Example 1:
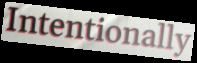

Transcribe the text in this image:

Intentionally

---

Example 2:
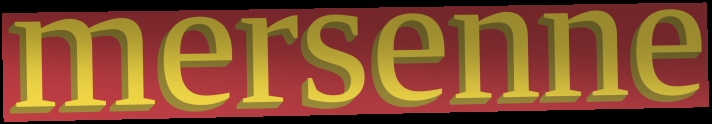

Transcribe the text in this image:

mersenne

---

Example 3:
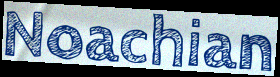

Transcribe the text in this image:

Noachian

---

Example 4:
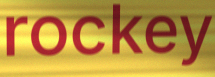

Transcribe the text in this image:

rockey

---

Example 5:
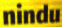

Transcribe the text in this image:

nindu